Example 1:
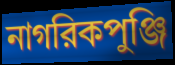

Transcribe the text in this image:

নাগরিকপুঞ্জি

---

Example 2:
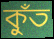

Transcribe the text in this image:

কুঁত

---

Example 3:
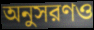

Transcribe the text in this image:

অনুসরণও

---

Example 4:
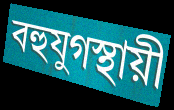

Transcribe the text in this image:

বহুযুগস্থায়ী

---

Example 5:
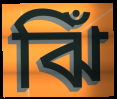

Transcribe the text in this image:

ঝিঁ